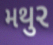
મથુર